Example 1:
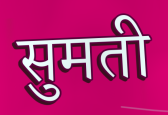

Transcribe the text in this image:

सुमती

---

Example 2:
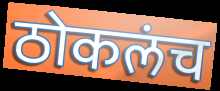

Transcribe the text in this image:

ठोकलंच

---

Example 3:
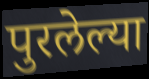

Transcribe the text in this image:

पुरलेल्या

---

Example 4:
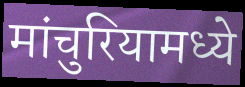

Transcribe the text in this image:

मांचुरियामध्ये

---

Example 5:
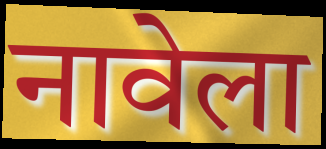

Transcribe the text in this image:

नावेला